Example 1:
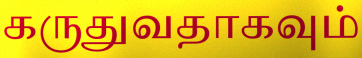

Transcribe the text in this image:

கருதுவதாகவும்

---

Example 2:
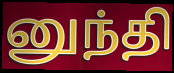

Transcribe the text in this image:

னுந்தி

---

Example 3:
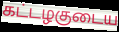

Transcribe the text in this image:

கட்டழகுடைய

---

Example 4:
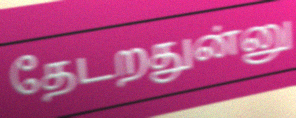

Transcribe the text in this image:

தேடறதுன்னு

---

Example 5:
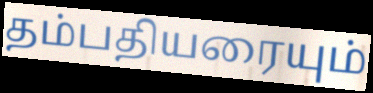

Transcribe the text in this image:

தம்பதியரையும்